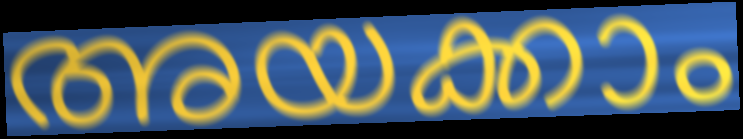
അയക്കാം